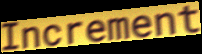
Increment